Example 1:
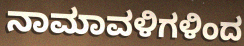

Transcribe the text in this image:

ನಾಮಾವಳಿಗಳಿಂದ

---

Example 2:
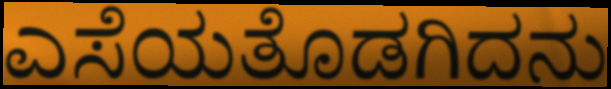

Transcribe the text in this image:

ಎಸೆಯತೊಡಗಿದನು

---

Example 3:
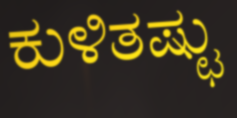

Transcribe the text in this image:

ಕುಳಿತಷ್ಟು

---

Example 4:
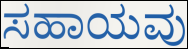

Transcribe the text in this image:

ಸಹಾಯವು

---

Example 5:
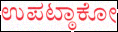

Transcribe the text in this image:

ಉಪಟ್ಠಾಕೋ